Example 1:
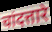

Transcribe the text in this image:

चांदत्तारे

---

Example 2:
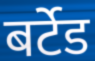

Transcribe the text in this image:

बर्टेड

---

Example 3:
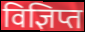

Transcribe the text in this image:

विज्ञिप्त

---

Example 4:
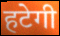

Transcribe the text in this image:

हटेगी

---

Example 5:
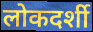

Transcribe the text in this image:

लोकदर्शी